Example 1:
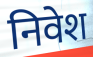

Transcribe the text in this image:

निवेश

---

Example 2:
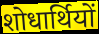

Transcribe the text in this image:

शोधार्थियों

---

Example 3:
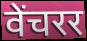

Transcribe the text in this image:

वेंचरर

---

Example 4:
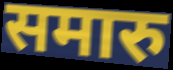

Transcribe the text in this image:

समारु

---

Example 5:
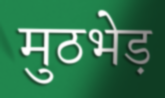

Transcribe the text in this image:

मुठभेड़